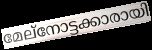
മേല്നോട്ടക്കാരായി